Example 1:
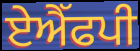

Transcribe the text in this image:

ਏਐੱਫਪੀ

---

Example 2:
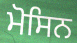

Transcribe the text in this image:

ਮੋਸਿਨ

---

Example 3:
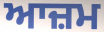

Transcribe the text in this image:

ਆਜ਼ਮ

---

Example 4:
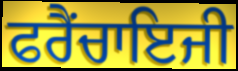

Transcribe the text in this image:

ਫਰੈਂਚਾਇਜੀ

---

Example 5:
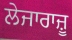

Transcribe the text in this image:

ਲੇਜਾਰਾਜ਼ੂ